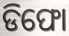
ଡିଫୋ